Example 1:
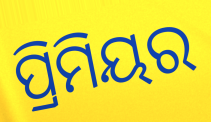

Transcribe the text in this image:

ପ୍ରିମିୟର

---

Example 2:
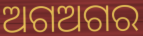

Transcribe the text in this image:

ଅଗଅଗର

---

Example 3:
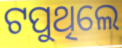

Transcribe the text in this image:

ଟପୁଥିଲେ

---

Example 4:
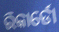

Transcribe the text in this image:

ରିକାର୍ଡୋ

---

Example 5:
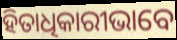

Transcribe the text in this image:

ହିତାଧିକାରୀଭାବେ